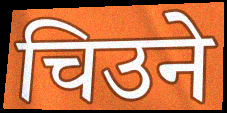
चिउने